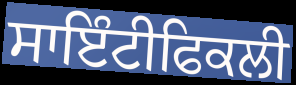
ਸਾਇੰਟੀਫਿਕਲੀ